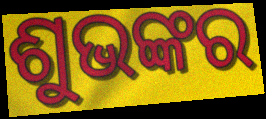
ଶୁଭଙ୍କର